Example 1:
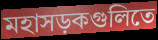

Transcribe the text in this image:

মহাসড়কগুলিতে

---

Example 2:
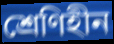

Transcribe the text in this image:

শ্রেণিহীন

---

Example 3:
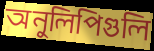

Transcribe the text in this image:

অনুলিপিগুলি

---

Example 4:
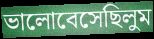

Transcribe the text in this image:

ভালোবেসেছিলুম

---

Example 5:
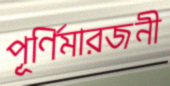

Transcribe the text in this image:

পূর্ণিমারজনী